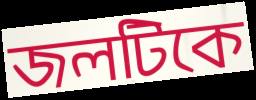
জলটিকে